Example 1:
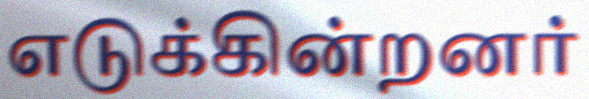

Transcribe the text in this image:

எடுக்கின்றனர்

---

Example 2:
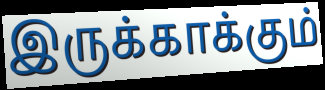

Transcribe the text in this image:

இருக்காக்கும்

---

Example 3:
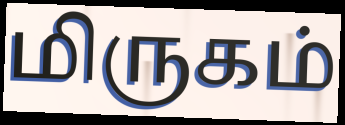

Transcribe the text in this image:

மிருகம்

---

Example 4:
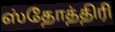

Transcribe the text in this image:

ஸ்தோத்திரி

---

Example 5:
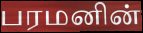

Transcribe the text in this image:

பரமனின்